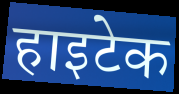
हाइटेक